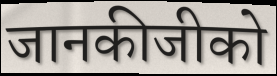
जानकीजीको